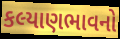
કલ્યાણભાવનો